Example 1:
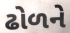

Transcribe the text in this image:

ઢોળને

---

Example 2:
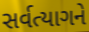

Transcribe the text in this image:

સર્વત્યાગને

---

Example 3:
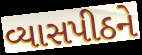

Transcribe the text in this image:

વ્યાસપીઠને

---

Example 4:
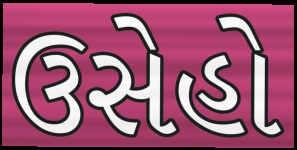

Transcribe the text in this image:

ઉસેહો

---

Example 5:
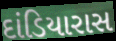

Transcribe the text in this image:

દાંડિયારાસ